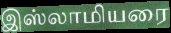
இஸ்லாமியரை